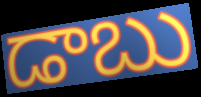
డాబు